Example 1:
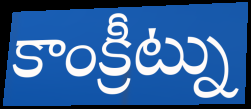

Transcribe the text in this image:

కాంక్రీట్ను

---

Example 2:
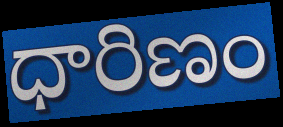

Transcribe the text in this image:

ధారిణం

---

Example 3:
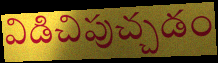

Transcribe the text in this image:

విడిచిపుచ్చడం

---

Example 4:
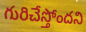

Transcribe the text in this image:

గురిచేస్తోందని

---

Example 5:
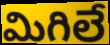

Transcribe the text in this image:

మిగిలే